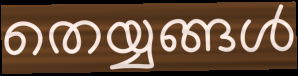
തെയ്യങ്ങൾ